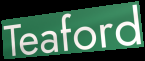
Teaford